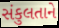
સંકુલતાને